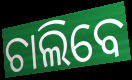
ଚାଲିବେ